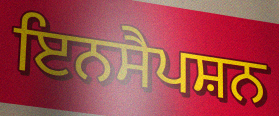
ਇਨਸੈਪਸ਼ਨ